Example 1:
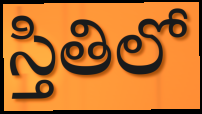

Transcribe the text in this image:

స్తితిలో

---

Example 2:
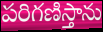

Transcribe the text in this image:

పరిగణిస్తాను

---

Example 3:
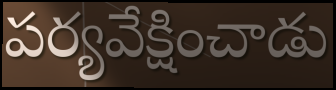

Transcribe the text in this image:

పర్యవేక్షించాడు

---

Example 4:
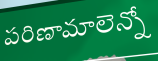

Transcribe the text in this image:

పరిణామాలెన్నో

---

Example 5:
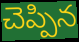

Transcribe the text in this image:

చెప్పిన